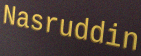
Nasruddin